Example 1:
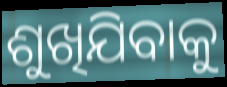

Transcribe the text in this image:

ଶୁଖିଯିବାକୁ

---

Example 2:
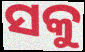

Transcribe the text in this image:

ସକୁ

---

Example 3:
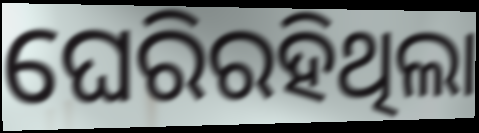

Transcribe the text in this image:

ଘେରିରହିଥିଲା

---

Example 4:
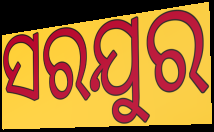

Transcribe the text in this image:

ସରଯୁର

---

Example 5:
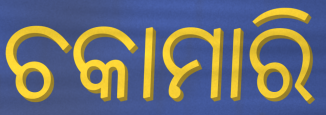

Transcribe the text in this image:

ଚକାମାରି